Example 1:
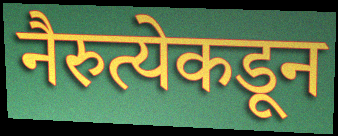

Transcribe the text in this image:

नैरुत्येकडून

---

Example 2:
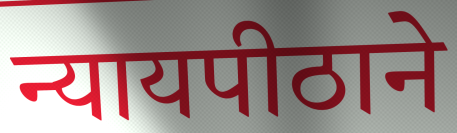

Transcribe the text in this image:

न्यायपीठाने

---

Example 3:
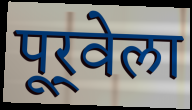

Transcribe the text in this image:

पूर्वेला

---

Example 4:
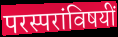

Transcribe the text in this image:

परस्परांविषयीं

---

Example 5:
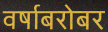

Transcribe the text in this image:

वर्षाबरोबर